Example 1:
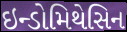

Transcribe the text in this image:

ઇન્ડોમિથેસિન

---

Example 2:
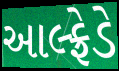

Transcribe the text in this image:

આલ્ફ્રેડે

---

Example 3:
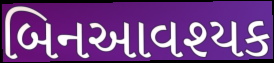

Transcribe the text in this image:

બિનઆવશ્યક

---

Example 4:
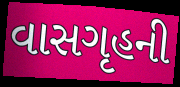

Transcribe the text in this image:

વાસગૃહની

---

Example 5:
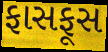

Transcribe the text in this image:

ફાસફૂસ